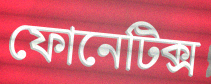
ফোনেটিক্স